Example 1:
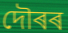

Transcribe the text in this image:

দৌৰৰ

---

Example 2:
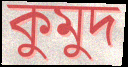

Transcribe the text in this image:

কুমুদ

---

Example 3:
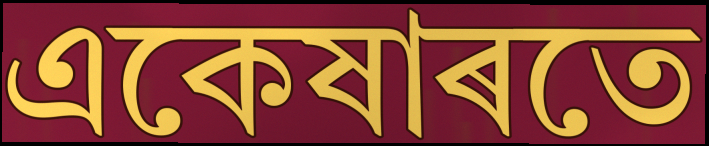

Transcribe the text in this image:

একেষাৰতে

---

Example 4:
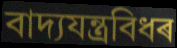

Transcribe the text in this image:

বাদ্যযন্ত্ৰবিধৰ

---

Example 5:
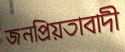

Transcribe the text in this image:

জনপ্ৰিয়তাবাদী